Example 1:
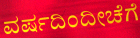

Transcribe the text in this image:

ವರ್ಷದಿಂದೀಚೆಗೆ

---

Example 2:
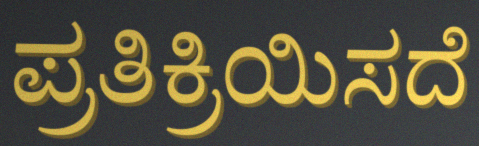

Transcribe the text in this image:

ಪ್ರತಿಕ್ರಿಯಿಸದೆ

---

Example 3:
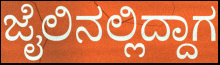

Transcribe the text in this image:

ಜೈಲಿನಲ್ಲಿದ್ದಾಗ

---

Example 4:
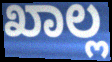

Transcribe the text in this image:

ಖಾಲ್ಲ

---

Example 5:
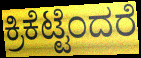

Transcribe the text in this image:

ಕ್ರಿಕೆಟ್ಟೆಂದರೆ